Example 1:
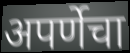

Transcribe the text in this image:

अपर्णेचा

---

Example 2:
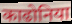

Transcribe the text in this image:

काढोनिया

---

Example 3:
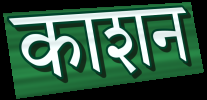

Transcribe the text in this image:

काशन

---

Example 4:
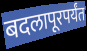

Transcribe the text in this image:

बदलापूरपर्यंत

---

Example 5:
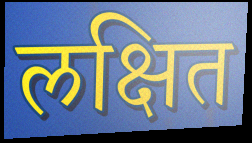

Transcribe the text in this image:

लक्षित